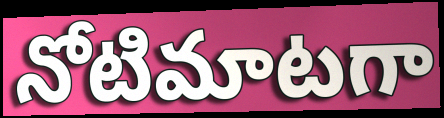
నోటిమాటగా